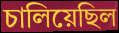
চালিয়েছিল